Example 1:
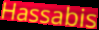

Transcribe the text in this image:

Hassabis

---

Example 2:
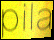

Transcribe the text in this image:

pila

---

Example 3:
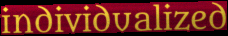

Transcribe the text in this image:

individualized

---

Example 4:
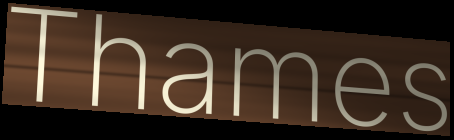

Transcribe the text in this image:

Thames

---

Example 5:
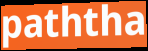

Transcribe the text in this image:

paththa